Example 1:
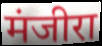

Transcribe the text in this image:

मंजीरा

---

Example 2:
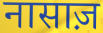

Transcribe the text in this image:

नासाज़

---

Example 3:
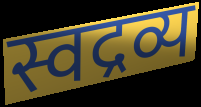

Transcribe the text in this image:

स्वद्रव्य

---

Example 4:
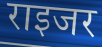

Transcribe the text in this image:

राइजर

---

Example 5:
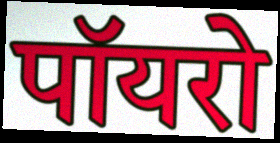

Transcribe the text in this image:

पॉयरो